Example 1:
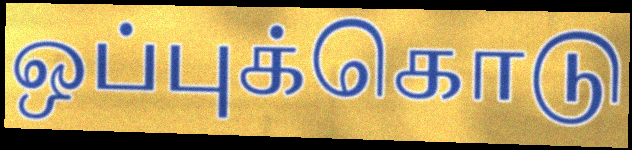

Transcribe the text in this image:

ஒப்புக்கொடு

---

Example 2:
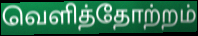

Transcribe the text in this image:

வெளித்தோற்றம்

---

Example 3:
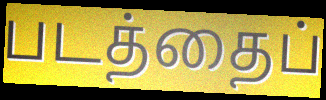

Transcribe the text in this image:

படத்தைப்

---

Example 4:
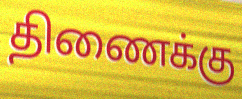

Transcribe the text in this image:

திணைக்கு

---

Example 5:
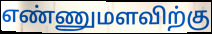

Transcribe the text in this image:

எண்ணுமளவிற்கு